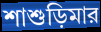
শাশুড়িমার